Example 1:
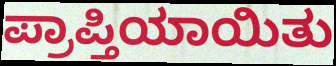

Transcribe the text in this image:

ಪ್ರಾಪ್ತಿಯಾಯಿತು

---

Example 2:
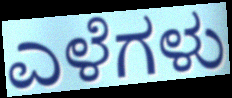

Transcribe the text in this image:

ಎಳೆಗಳು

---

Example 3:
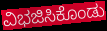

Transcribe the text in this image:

ವಿಭಜಿಸಿಕೊಂಡು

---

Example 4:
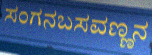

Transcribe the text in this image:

ಸಂಗನಬಸವಣ್ಣನ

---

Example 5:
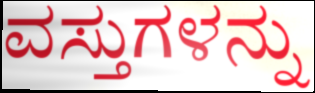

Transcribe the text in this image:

ವಸ್ತುಗಳನ್ನು